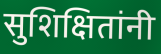
सुशिक्षितांनी